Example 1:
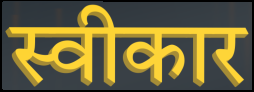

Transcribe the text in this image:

स्‍वीकार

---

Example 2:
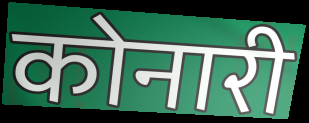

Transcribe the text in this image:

कोनारी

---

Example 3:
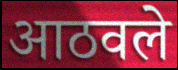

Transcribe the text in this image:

आठवले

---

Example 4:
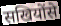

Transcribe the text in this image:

सखियोंसे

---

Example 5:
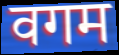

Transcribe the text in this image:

वगम